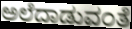
ಅಲೆದಾಡುವಂತೆ